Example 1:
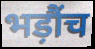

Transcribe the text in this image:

भड़ौंच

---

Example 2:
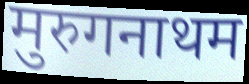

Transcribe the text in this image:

मुरुगनाथम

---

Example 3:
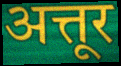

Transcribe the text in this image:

अत्तूर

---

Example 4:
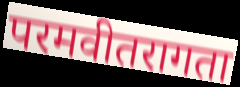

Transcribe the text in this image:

परमवीतरागता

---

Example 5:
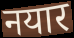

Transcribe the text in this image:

नयार